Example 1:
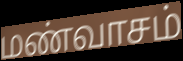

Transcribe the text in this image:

மண்வாசம்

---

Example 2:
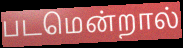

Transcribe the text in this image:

படமென்றால்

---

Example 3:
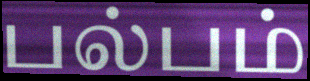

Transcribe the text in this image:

பல்பம்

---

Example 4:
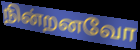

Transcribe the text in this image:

நின்றனவோ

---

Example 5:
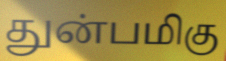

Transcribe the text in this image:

துன்பமிகு